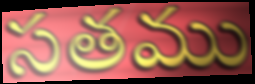
సతము